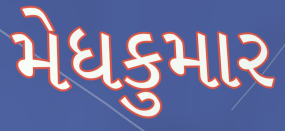
મેધકુમાર